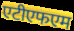
एटीएफएम